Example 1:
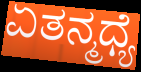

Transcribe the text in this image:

ಏತನ್ಮಧ್ಯೆ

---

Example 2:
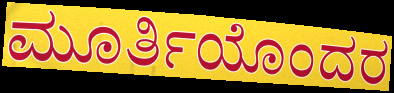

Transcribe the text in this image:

ಮೂರ್ತಿಯೊಂದರ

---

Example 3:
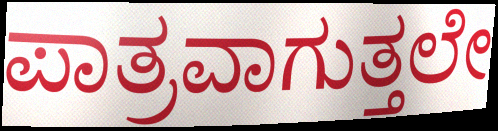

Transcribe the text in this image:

ಪಾತ್ರವಾಗುತ್ತಲೇ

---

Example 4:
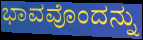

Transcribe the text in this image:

ಭಾವವೊಂದನ್ನು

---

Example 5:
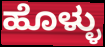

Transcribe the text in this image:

ಹೊಳ್ಳು